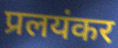
प्रलयंकर